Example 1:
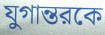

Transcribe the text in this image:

যুগান্তরকে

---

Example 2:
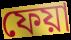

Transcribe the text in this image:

ফেয়া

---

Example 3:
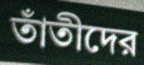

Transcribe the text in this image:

তাঁতীদের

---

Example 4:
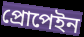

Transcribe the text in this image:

প্রোপেইন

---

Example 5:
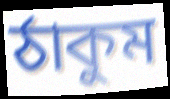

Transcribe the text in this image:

ঠাকুম